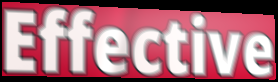
Effective